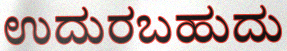
ಉದುರಬಹುದು